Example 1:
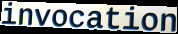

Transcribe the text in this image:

invocation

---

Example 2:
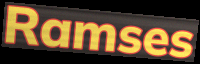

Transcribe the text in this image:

Ramses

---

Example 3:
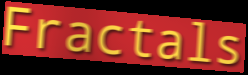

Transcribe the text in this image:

Fractals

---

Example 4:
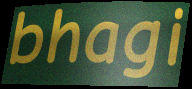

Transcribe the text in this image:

bhagi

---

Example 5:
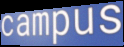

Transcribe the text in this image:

campus